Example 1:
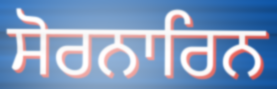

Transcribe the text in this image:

ਸੋਰਨਾਰਿਨ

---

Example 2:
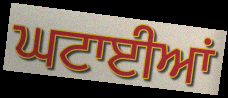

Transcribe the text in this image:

ਘਟਾਈਆਂ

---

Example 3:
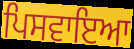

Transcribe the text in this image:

ਪਿਸਵਾਇਆ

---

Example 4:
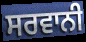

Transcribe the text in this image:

ਸਰਵਾਨੀ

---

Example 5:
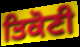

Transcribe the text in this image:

ਤਿਕੋਣੀ